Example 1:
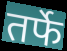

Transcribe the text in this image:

तर्फे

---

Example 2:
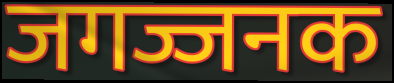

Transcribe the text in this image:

जगज्जनक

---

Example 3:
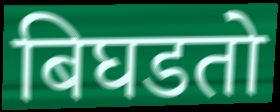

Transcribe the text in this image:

बिघडतो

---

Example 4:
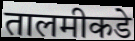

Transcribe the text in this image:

तालमीकडे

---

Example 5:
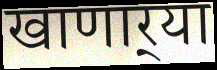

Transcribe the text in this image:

खाणार्या